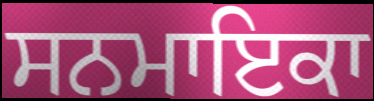
ਸਨਮਾਇਕਾ